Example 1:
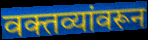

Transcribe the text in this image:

वक्तव्यांवरून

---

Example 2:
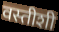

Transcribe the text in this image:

वस्‍तीशी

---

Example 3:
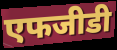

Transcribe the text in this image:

एफजीडी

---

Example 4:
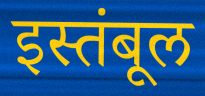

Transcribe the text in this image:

इस्तंबूल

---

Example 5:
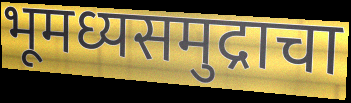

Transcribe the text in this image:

भूमध्यसमुद्राचा